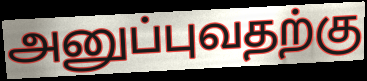
அனுப்புவதற்கு